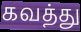
கவத்து